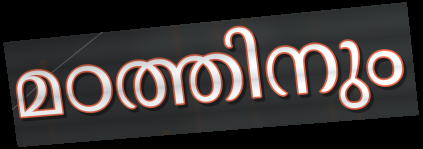
മഠത്തിനും